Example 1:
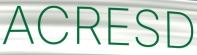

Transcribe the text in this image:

ACRESD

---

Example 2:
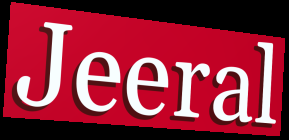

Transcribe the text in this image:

Jeeral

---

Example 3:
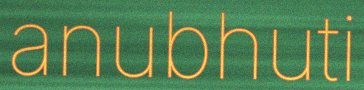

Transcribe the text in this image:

anubhuti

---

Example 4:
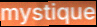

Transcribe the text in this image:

mystique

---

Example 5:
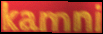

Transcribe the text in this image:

kamni